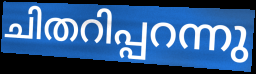
ചിതറിപ്പറന്നു